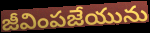
జీవింపజేయును